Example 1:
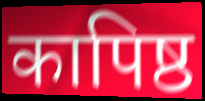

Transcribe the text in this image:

कापिष्ठ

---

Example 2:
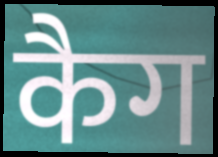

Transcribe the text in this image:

कैग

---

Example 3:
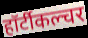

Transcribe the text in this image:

हॉर्टीकल्चर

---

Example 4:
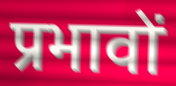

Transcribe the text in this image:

प्रभावों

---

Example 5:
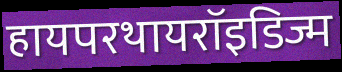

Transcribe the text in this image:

हायपरथायरॉइडिज्म